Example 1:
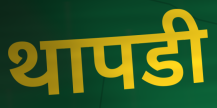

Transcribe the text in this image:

थापडी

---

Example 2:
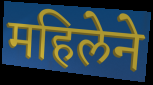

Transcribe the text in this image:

महिलेने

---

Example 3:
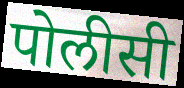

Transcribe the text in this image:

पोलीसी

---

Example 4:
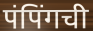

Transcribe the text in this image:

पंपिंगची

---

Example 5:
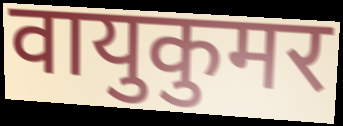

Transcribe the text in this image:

वायुकुमर